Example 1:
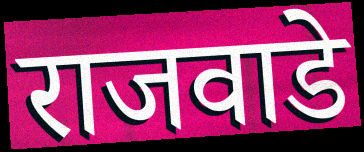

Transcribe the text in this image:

राजवाडे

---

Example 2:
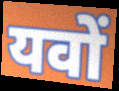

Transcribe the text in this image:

यवों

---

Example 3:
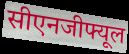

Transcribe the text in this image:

सीएनजीफ्यूल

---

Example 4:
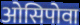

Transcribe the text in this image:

ओसिपोवा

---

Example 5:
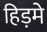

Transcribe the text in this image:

हिड़मे